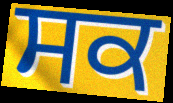
ਸਕ